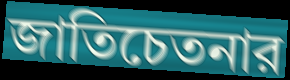
জাতিচেতনার